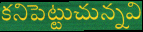
కనిపెట్టుచున్నవి